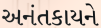
અનંતકાયને